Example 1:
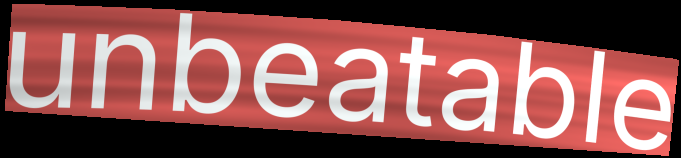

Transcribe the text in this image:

unbeatable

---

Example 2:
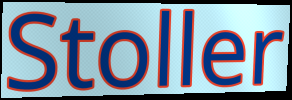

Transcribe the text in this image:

Stoller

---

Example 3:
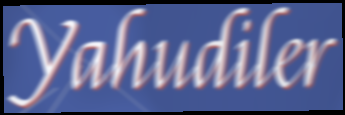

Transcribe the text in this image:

Yahudiler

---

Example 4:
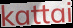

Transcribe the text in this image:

kattai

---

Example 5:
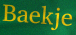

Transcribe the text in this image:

Baekje